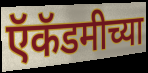
ऍकॅडमीच्या